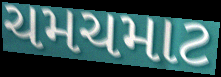
ચમચમાટ